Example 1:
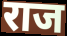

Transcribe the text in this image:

राज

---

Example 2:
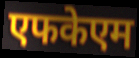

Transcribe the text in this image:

एफकेएम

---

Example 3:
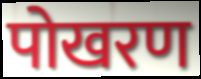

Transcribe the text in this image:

पोखरण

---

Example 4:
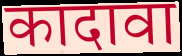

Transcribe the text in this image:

कादावा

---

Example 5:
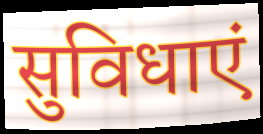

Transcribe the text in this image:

सुविधाएं